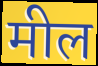
मील